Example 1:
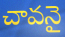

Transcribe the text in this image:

చావనై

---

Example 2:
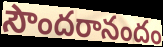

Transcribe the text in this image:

సౌందరానందం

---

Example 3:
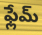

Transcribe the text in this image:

ఫ్లేమ్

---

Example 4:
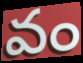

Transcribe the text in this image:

వం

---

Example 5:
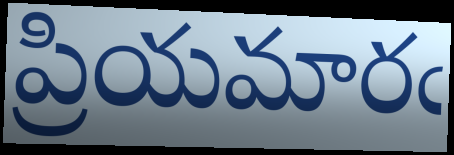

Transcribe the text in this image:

ప్రియమారఁ